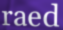
raed